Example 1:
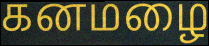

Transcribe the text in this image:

கனமழை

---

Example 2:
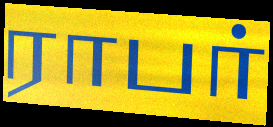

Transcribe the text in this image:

ராபர்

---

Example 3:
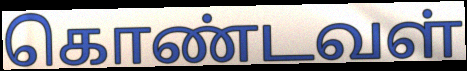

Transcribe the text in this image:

கொண்டவள்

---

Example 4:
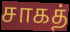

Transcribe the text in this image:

சாகத்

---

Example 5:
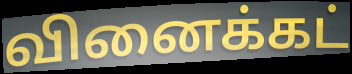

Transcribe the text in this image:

வினைக்கட்